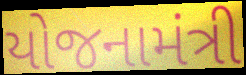
યોજનામંત્રી